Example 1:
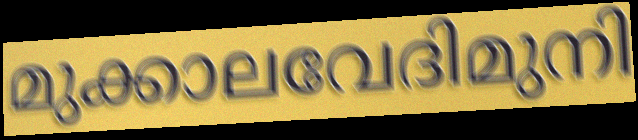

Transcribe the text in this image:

മുക്കാലവേദിമുനി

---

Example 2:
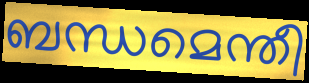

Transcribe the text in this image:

ബന്ധമെന്തീ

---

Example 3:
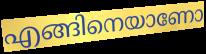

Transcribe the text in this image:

എങ്ങിനെയാണോ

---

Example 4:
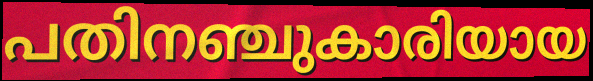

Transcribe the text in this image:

പതിനഞ്ചുകാരിയായ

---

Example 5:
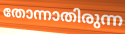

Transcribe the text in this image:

തോന്നാതിരുന്ന